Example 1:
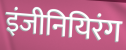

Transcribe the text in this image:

इंजीनियिरंग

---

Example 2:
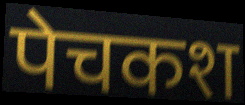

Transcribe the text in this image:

पेचकश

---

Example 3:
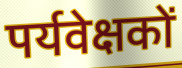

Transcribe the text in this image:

पर्यवेक्षकों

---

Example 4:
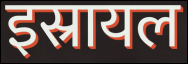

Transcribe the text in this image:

इस्रायल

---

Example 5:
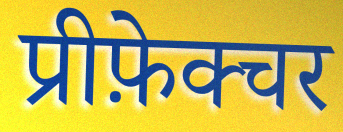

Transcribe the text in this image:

प्रीफ़ेक्चर